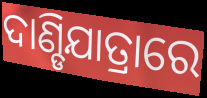
ଦାଣ୍ଡିଯାତ୍ରାରେ